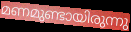
മണമുണ്ടായിരുന്നു